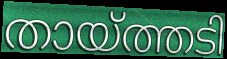
തായ്ത്തടി